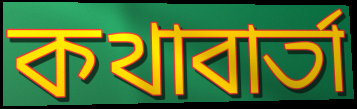
কথাবার্তা